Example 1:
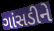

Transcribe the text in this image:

ગાંસડીને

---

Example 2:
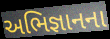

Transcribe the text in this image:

અભિજ્ઞાનના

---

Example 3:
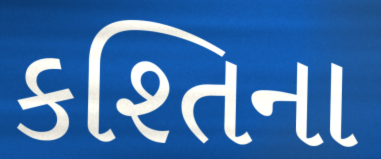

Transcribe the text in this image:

કશ્તિના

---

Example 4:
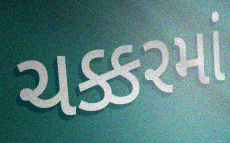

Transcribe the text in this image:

ચક્કરમાં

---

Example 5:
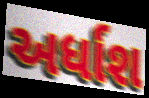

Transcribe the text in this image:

અર્ધાશ